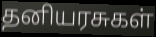
தனியரசுகள்